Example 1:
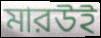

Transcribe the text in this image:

মারউই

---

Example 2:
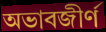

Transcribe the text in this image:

অভাবজীর্ণ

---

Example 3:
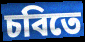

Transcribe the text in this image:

চবিতে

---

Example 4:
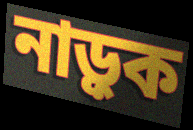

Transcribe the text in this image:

নাড়ুক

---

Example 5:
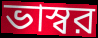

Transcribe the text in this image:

ভাস্বর